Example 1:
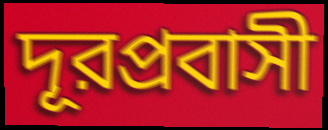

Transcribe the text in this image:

দূরপ্রবাসী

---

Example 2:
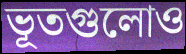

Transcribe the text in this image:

ভূতগুলোও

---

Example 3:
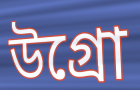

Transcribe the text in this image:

উগ্রো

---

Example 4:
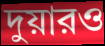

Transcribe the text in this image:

দুয়ারও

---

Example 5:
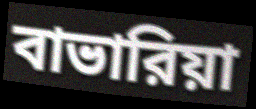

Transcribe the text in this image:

বাভারিয়া